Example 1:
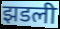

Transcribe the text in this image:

झडली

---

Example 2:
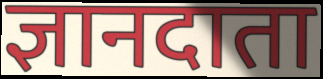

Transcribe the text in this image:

ज्ञानदाता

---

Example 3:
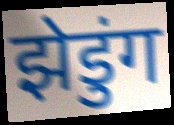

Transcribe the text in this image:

झेडुंग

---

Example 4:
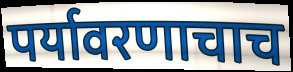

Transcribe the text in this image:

पर्यावरणाचाच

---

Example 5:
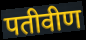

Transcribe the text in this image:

पतीवीण